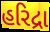
હરિદ્રા